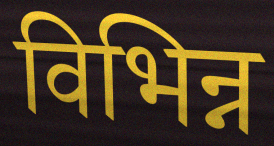
विभिन्न